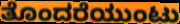
ತೊಂದರೆಯುಂಟು